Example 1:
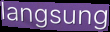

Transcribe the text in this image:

langsung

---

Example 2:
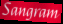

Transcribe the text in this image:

Sangram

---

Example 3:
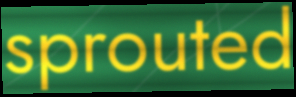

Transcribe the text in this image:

sprouted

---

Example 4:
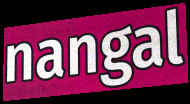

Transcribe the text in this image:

nangal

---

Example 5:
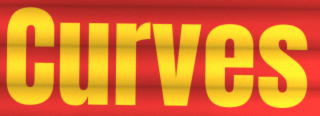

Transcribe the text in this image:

Curves